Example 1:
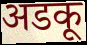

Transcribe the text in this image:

अडकू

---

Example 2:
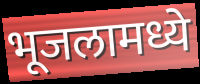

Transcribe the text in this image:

भूजलामध्ये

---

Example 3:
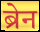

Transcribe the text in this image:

ब्रेन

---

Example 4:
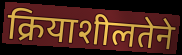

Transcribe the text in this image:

क्रियाशीलतेने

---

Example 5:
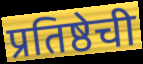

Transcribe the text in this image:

प्रतिष्ठेची